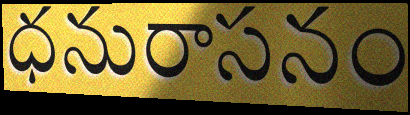
ధనురాసనం